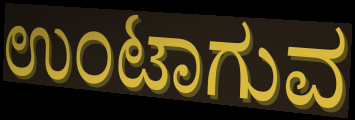
ಉಂಟಾಗುವ